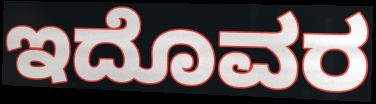
ಇದೊವರ